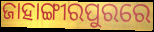
ଜାହାଙ୍ଗୀରପୁରରେ